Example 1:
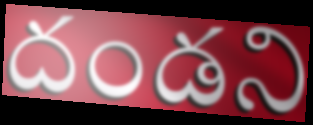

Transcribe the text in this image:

దండని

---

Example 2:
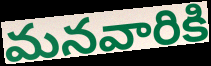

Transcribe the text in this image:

మనవారికి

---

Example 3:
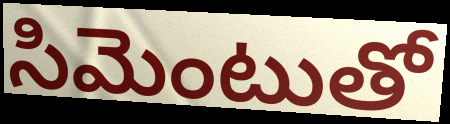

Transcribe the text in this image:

సిమెంటుతో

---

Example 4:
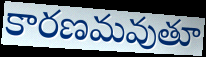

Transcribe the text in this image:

కారణమవుతూ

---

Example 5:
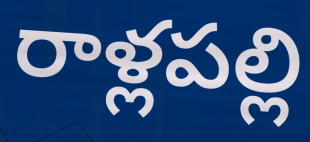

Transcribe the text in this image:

రాళ్లపల్లి